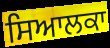
ਸਿਆਲਕਾ